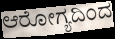
ಆರೋಗ್ಯದಿಂದ